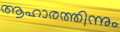
ആഹാരത്തിന്നും